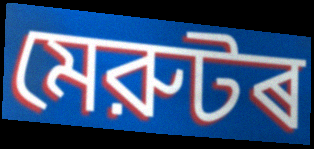
মেৰুটৰ